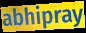
abhipray